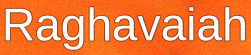
Raghavaiah